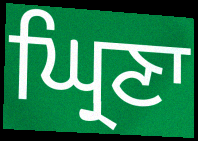
ਘ੍ਰਿਣਾ